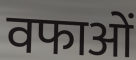
वफाओं